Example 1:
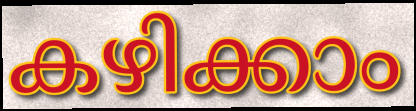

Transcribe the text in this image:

കഴിക്കാം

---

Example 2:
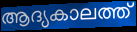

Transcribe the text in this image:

ആദ്യകാലത്ത്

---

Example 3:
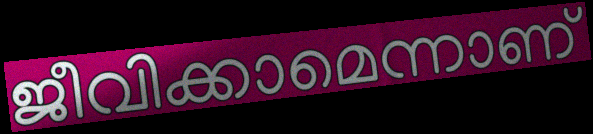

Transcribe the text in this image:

ജീവിക്കാമെന്നാണ്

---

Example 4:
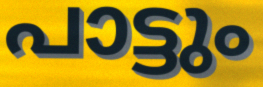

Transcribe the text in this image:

പാട്ടും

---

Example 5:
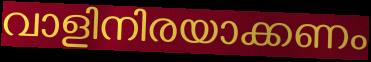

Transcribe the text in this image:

വാളിനിരയാക്കണം